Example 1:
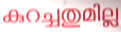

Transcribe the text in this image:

കുറച്ചതുമില്ല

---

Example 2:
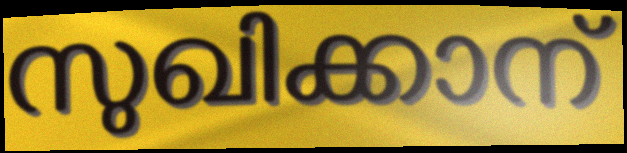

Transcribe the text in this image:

സുഖിക്കാന്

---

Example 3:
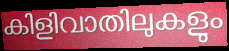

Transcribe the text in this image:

കിളിവാതിലുകളും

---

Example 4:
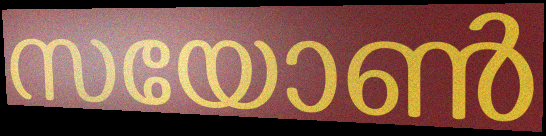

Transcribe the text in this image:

സയോൺ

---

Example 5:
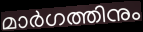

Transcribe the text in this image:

മാർഗത്തിനും